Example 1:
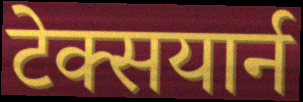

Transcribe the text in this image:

टेक्सयार्न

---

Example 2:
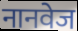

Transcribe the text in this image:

नानवेज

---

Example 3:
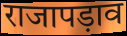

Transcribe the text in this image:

राजापड़ाव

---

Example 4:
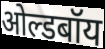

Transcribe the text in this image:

ओल्डबॉय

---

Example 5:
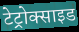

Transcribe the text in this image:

टेट्रोक्साइड